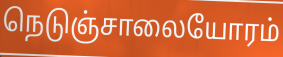
நெடுஞ்சாலையோரம்